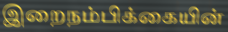
இறைநம்பிக்கையின்